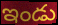
ఇండు